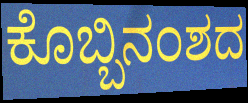
ಕೊಬ್ಬಿನಂಶದ